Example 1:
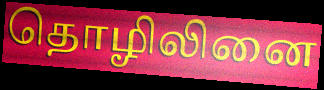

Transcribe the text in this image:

தொழிலினை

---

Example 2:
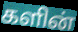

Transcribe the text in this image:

களின்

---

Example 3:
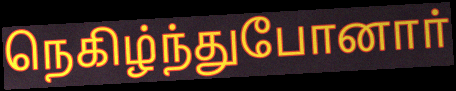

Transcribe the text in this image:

நெகிழ்ந்துபோனார்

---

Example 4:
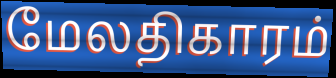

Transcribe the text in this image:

மேலதிகாரம்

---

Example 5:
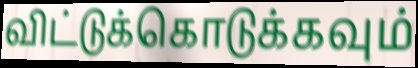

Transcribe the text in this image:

விட்டுக்கொடுக்கவும்